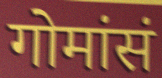
गोमांसं